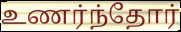
உணர்ந்தோர்